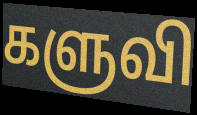
களுவி